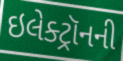
ઇલેક્ટ્રૉનની